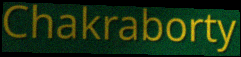
Chakraborty